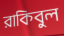
রাকিবুল